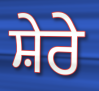
ਸ਼ੇਰੇ